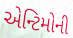
એન્ટિમોની